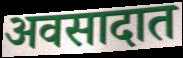
अवसादात